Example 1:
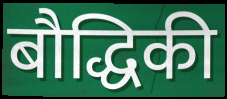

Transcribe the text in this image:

बौद्धिकी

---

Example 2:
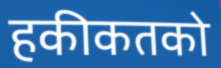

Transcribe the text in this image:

हकीकतको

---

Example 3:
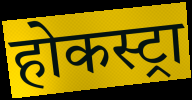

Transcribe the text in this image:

होकस्ट्रा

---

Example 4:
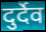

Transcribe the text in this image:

दुर्देव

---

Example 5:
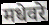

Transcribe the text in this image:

मधेवरे